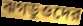
ঝগডুওদের